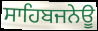
ਸਾਹਿਬਜਨੇਊ